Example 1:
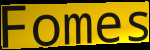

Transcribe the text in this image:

Fomes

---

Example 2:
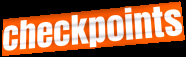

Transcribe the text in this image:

checkpoints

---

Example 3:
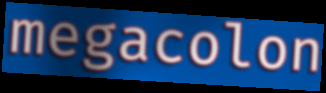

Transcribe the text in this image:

megacolon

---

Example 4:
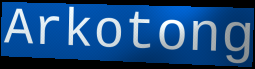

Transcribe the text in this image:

Arkotong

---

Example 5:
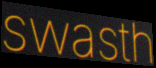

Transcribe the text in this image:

swasth